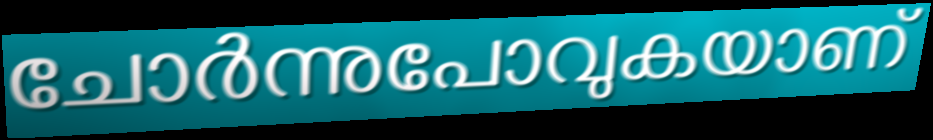
ചോർന്നുപോവുകയാണ്